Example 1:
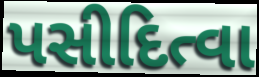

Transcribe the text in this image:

પસીદિત્વા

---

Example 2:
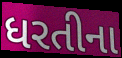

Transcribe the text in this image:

ધરતીના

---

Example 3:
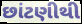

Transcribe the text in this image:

છાંટણીથી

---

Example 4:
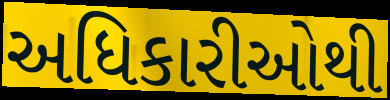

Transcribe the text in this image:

અધિકારીઓથી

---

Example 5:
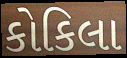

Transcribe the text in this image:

કોકિલા